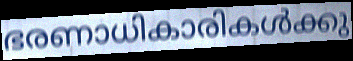
ഭരണാധികാരികൾക്കു